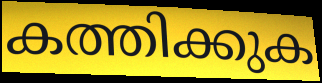
കത്തിക്കുക